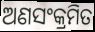
ଅଣସଂକ୍ରମିତ